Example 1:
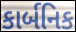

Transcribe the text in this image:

કાર્બનિક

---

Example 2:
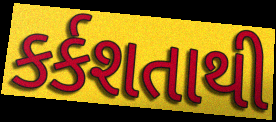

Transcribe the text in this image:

કર્કશતાથી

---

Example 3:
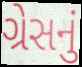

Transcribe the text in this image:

ગ્રેસનું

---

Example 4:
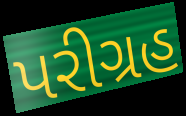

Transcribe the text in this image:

પરીગ્રહ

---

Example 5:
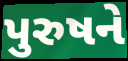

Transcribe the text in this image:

પુરુષને